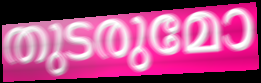
തുടരുമോ